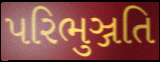
પરિભુઞ્જતિ